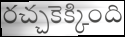
రచ్చకెక్కింది